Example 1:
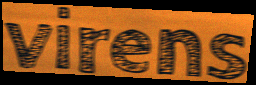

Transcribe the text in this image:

virens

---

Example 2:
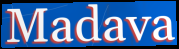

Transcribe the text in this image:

Madava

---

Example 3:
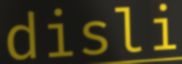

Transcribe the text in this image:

disli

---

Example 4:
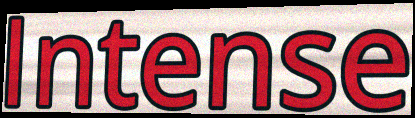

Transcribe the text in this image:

Intense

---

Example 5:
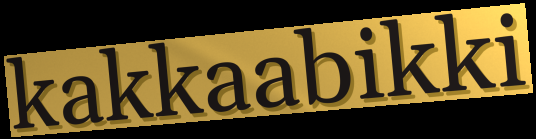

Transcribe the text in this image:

kakkaabikki